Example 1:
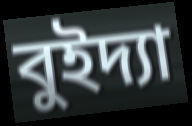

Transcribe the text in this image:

বুইদ্যা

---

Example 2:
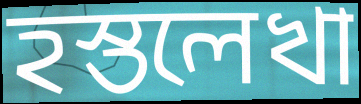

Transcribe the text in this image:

হস্তলেখা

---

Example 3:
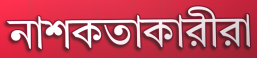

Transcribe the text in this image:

নাশকতাকারীরা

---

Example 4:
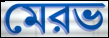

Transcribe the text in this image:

মেরভ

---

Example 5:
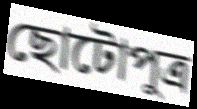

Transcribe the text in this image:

ছোটোপুত্র